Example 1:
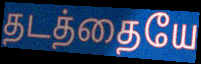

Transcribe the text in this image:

தடத்தையே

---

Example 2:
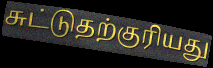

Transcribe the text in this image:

சுட்டுதற்குரியது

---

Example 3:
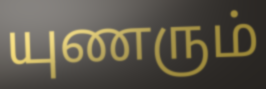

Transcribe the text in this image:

யுணரும்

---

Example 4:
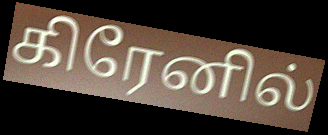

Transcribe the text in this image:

கிரேனில்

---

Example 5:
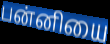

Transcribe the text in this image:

பன்னியை